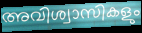
അവിശ്വാസികളും